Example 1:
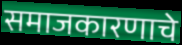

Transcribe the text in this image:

समाजकारणाचे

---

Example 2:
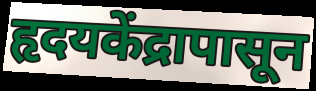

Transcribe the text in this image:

हृदयकेंद्रापासून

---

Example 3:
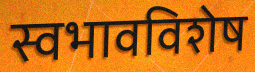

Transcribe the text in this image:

स्वभावविशेष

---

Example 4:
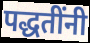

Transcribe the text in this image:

पद्धतींनी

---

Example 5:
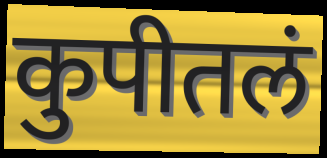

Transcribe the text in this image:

कुपीतलं